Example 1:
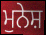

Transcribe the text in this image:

ਮੁਨੇਸ਼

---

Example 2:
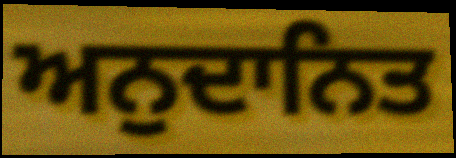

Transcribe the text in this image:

ਅਨੁਦਾਨਿਤ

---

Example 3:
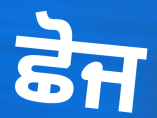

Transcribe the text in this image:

ਛੋਜ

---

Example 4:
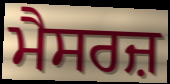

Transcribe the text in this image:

ਮੈਸਰਜ਼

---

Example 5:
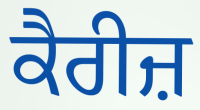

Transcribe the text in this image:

ਕੈਰੀਜ਼